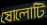
ষোলোটি